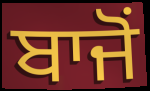
ਬਾਜੋਂ